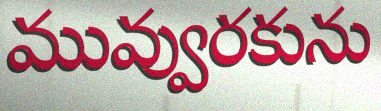
మువ్వురకును